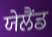
ਯੇਲੈਂਡ